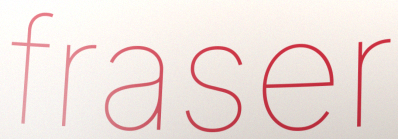
fraser